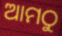
ଆମଠୁ